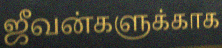
ஜீவன்களுக்காக